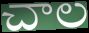
చాల